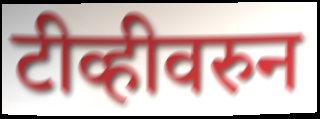
टीव्हीवरुन